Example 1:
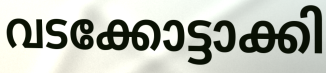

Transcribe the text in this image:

വടക്കോട്ടാക്കി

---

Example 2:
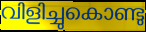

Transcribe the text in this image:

വിളിച്ചുകൊണ്ടു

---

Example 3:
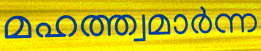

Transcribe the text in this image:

മഹത്ത്വമാർന്ന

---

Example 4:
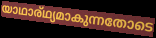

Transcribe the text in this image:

യാഥാര്ഥ്യമാകുന്നതോടെ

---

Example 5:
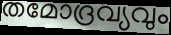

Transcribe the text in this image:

തമോദ്രവ്യവും